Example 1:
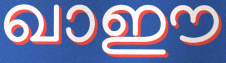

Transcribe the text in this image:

ഖാഈ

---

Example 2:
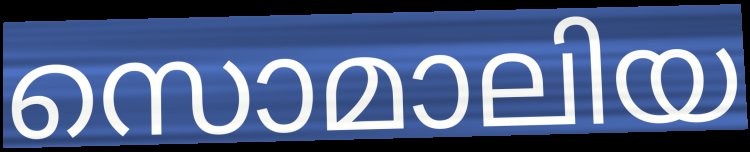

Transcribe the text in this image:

സൊമാലിയ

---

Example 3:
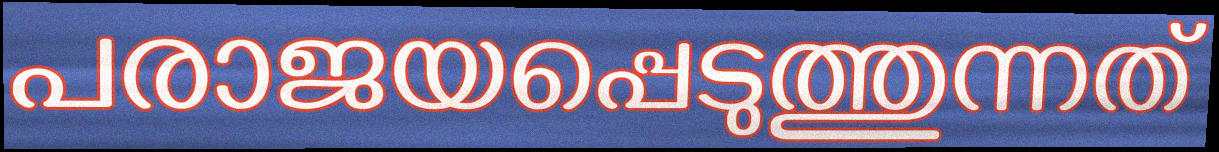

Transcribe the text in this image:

പരാജയപ്പെടുത്തുന്നത്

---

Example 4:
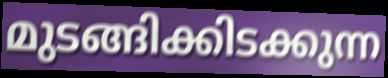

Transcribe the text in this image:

മുടങ്ങിക്കിടക്കുന്ന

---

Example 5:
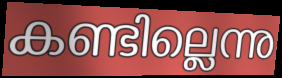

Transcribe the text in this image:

കണ്ടില്ലെന്നു